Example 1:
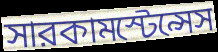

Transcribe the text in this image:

সারকামস্টেন্সেস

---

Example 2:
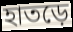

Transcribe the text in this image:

হাতড়ে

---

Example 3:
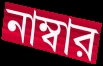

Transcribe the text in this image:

নাম্বার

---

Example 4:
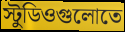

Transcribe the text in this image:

স্টুডিওগুলোতে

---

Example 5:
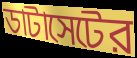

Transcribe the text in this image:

ডাটাসেটের